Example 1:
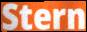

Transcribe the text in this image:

Stern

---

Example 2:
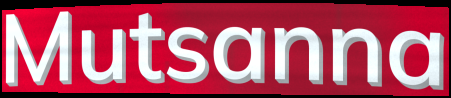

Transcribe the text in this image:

Mutsanna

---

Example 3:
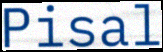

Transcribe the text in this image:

Pisal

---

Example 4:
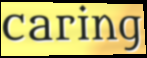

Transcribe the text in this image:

caring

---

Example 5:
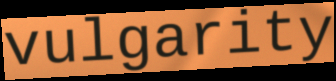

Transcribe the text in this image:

vulgarity